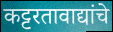
कट्टरतावाद्यांचे